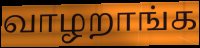
வாழறாங்க